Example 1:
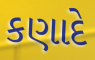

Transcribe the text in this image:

કણાદે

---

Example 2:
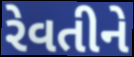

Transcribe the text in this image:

રેવતીને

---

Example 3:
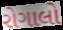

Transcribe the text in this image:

રોગાલો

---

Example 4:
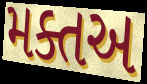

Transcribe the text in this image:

મક્તઅ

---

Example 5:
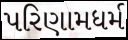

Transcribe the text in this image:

પરિણામધર્મ